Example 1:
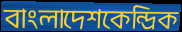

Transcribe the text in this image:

বাংলাদেশকেন্দ্রিক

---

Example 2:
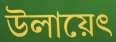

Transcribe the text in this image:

উলায়েৎ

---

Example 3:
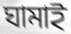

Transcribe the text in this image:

ঘামাই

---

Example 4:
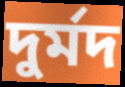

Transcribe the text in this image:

দুর্মদ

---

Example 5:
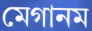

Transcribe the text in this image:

মেগানম